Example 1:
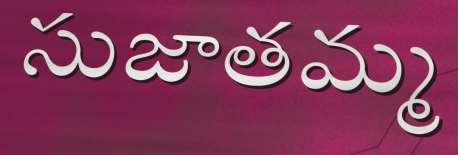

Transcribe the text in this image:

సుజాతమ్మ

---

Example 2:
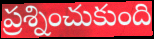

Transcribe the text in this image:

ప్రశ్నించుకుంది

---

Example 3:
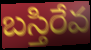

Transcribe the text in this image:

బస్తిరేవ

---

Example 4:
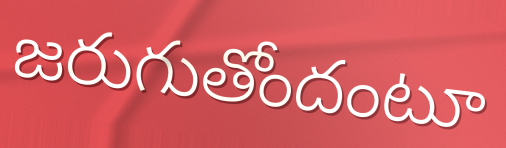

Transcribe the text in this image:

జరుగుతోందంటూ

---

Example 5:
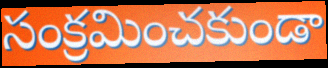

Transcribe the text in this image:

సంక్రమించకుండా